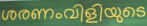
ശരണംവിളിയുടെ